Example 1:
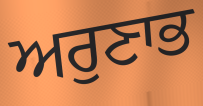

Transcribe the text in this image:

ਅਰੁਣਾਭ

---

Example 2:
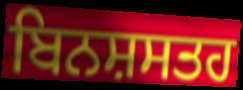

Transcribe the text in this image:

ਬਿਨਸ਼ਸਤਹ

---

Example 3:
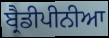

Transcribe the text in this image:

ਬ੍ਰੈਡੀਪੀਨੀਆ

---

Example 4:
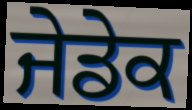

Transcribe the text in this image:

ਜੇਡੇਕ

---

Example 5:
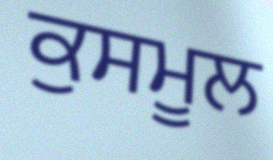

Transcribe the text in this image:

ਕੁਸਮੂਲ